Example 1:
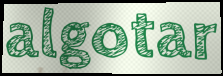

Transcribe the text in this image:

algotar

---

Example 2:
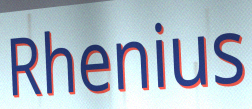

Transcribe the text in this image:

Rhenius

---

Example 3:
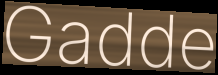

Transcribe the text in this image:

Gadde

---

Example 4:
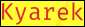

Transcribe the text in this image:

Kyarek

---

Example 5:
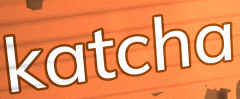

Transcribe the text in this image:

katcha